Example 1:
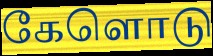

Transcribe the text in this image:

கேளொடு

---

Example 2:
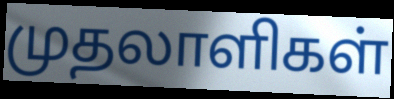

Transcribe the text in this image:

முதலாளிகள்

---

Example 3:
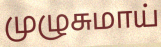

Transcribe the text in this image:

முழுசுமாய்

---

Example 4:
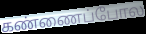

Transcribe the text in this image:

கண்ணைப்போல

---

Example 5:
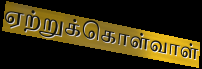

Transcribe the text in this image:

ஏற்றுக்கொள்வாள்